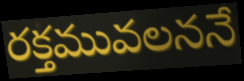
రక్తమువలననే